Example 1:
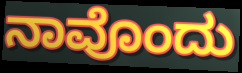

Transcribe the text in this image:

ನಾವೊಂದು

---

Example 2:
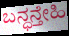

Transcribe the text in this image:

ಬನ್ಧನ್ತೇಹಿ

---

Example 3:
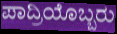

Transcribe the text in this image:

ಪಾದ್ರಿಯೊಬ್ಬರು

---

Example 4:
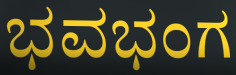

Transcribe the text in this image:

ಭವಭಂಗ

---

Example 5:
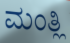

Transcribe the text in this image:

ಮಂತ್ಲಿ